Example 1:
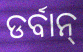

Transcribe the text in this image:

ଡର୍ବାନ୍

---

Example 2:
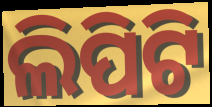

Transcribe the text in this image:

ଲିପିଟି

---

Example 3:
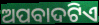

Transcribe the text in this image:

ଅପବାଦଟିଏ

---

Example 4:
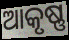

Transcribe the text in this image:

ଆକୃଷ୍ଣ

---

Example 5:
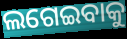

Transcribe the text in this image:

ଲଗେଇବାକୁ